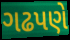
ગઢપણે